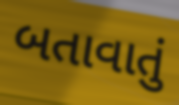
બતાવાતું